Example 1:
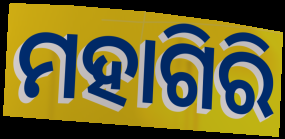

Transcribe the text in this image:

ମହାଗିରି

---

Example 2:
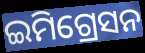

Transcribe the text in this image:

ଇମିଗ୍ରେସନ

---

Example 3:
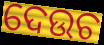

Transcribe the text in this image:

ଦେଉଚ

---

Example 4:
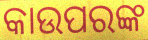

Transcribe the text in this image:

କାଉପରଙ୍କ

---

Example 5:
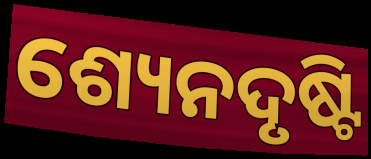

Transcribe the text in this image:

ଶ୍ୟେନଦୃଷ୍ଟି